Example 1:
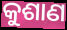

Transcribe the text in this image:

କୁଶାଣ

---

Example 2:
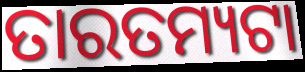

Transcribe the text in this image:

ତାରତମ୍ୟଟା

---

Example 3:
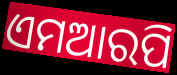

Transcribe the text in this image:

ଏମଆରପି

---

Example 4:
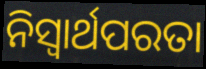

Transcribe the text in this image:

ନିସ୍ଵାର୍ଥପରତା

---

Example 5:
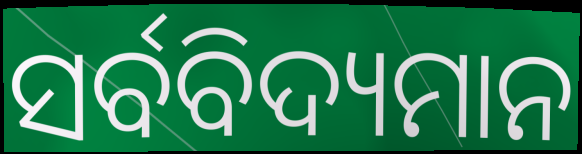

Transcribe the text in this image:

ସର୍ବବିଦ୍ୟମାନ